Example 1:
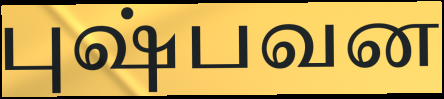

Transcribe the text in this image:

புஷ்பவன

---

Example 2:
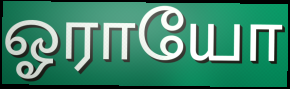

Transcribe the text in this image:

ஓராயோ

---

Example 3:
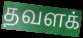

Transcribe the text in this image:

தவளக்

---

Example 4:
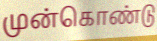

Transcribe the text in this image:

முன்கொண்டு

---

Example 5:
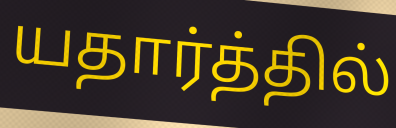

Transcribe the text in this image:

யதார்த்தில்